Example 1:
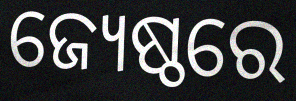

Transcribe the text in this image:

ଜ୍ୟେଷ୍ଠରେ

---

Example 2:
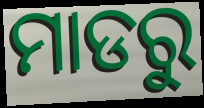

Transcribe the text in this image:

ମାଡରୁ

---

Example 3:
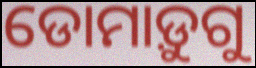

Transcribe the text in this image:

ଡୋମାଡ଼ୁଗୁ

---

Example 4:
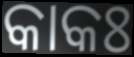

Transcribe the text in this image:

କାକଃ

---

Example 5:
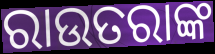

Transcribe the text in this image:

ରାଉତରାଙ୍କ